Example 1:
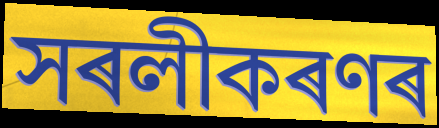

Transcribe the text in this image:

সৰলীকৰণৰ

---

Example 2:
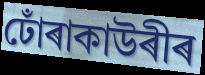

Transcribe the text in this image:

ঢোঁৰাকাউৰীৰ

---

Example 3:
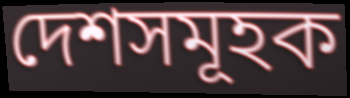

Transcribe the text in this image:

দেশসমূহক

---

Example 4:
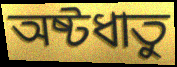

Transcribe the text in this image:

অষ্টধাতু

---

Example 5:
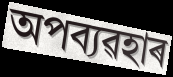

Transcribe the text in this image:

অপব্যৱহাৰ